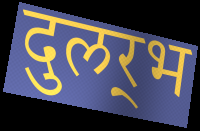
दुलर्भ